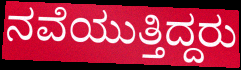
ನವೆಯುತ್ತಿದ್ದರು